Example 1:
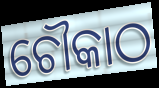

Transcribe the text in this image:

ଚୌକାଠ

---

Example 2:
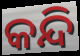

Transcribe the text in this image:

କନ୍ଦି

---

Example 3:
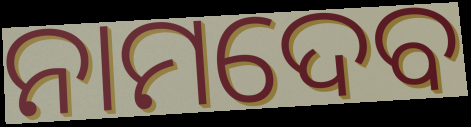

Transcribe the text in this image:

ନାମଦେବ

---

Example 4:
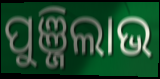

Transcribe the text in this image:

ପୁଞ୍ଜିଲାଭ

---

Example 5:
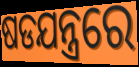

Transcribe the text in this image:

ଷଡଯନ୍ତ୍ରରେ